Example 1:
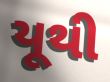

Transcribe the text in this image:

યૂથી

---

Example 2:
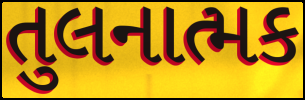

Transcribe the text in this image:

તુલનાત્મક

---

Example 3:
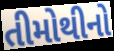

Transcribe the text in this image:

તીમોથીનો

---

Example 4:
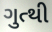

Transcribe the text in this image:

ગુત્થી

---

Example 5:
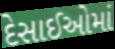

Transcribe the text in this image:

દેસાઈઓમાં